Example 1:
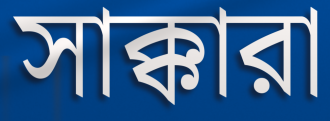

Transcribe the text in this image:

সাক্কারা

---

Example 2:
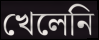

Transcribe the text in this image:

খেলেনি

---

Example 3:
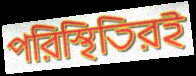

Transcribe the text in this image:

পরিস্থিতিরই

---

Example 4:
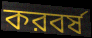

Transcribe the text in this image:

করবর্ষ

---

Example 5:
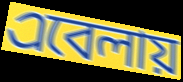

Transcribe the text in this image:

এবেলায়